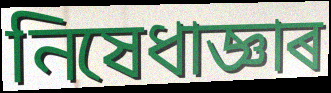
নিষেধাজ্ঞাৰ